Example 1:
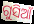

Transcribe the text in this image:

ଗୁସିଆଁ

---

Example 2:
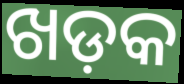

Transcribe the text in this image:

ଖଡ଼କ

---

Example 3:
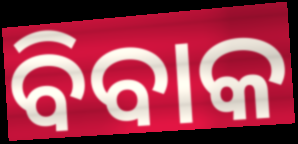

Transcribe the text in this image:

ବିବାକ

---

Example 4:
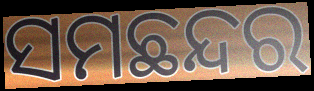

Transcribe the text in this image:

ସମଛନ୍ଦର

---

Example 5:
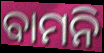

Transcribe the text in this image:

ବାମନି